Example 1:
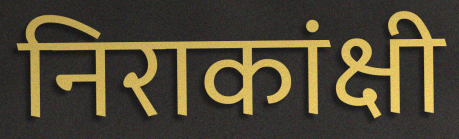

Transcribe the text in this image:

निराकांक्षी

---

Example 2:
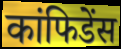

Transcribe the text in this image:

कांफिडेंस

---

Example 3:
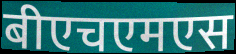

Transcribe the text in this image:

बीएचएमएस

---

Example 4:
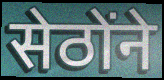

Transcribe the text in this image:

सेठोंने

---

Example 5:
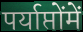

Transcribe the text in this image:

पर्याप्तोंमें